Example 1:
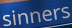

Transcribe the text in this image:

sinners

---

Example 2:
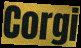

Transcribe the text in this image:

Corgi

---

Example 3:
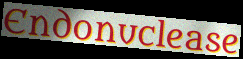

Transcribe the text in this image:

Endonuclease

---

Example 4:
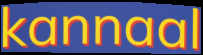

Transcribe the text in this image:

kannaal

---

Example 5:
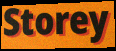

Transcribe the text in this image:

Storey